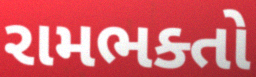
રામભક્તો